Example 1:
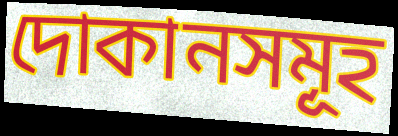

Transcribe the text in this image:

দোকানসমূহ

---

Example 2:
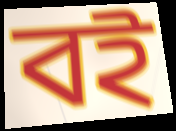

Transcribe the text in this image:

বই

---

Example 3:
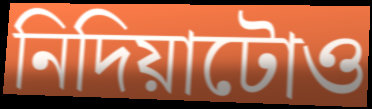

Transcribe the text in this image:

নিদিয়াটোও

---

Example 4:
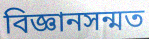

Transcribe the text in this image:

বিজ্ঞানসন্মত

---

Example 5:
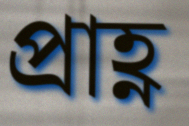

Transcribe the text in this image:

প্ৰাহ্ণ